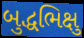
બુદ્ધભિક્ષુ